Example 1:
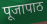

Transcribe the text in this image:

पूजापाठ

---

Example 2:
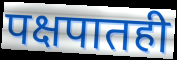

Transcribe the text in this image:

पक्षपातही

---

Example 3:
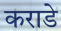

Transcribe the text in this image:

कराडे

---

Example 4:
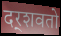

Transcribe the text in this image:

दर्शवतो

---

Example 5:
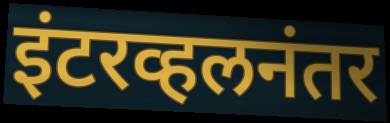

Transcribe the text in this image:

इंटरव्हलनंतर